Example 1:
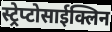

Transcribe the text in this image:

स्ट्रेप्टोसाईक्लिन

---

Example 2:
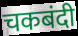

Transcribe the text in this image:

चकबंदी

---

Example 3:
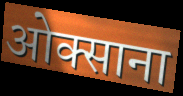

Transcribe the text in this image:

ओक्साना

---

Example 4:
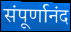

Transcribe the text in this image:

संपूर्णानंद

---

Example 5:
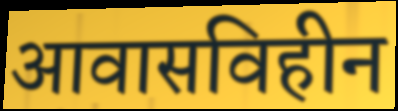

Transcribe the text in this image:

आवासविहीन